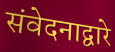
संवेदनाद्वारे